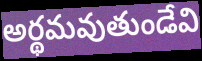
అర్థమవుతుండేవి